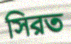
সিরত